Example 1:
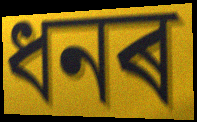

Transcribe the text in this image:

ধনৰ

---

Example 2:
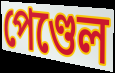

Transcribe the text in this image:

পেণ্ডেল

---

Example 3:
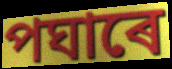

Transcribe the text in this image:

পঘাৰে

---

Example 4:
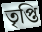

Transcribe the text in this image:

তৃপ্তি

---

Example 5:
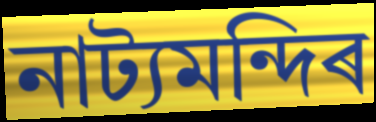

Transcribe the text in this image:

নাট্যমন্দিৰ